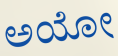
ಅಯೋ